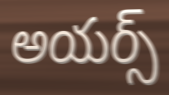
అయర్స్